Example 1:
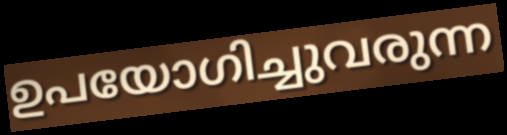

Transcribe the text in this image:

ഉപയോഗിച്ചുവരുന്ന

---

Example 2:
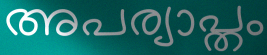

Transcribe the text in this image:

അപര്യാപ്തം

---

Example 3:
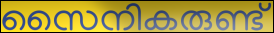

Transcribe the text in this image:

സൈനികരുണ്ട്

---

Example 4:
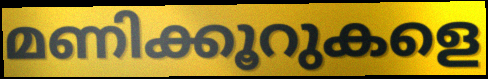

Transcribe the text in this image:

മണിക്കൂറുകളെ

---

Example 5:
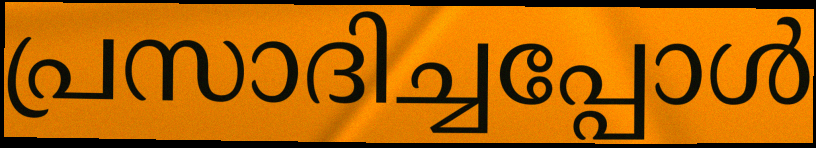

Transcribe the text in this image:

പ്രസാദിച്ചപ്പോൾ